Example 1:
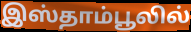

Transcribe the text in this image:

இஸ்தாம்பூலில்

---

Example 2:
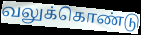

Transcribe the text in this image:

வலுக்கொண்டு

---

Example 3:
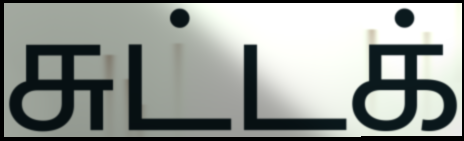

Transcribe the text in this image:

சுட்டக்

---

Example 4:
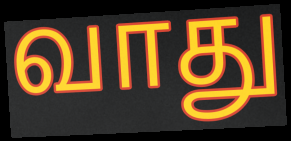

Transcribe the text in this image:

வாது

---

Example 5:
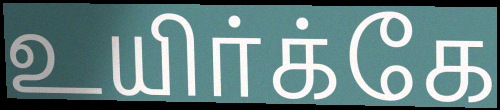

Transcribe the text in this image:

உயிர்க்கே